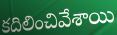
కదిలించివేశాయి